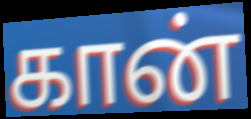
கான்